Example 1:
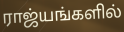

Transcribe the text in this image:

ராஜ்யங்களில்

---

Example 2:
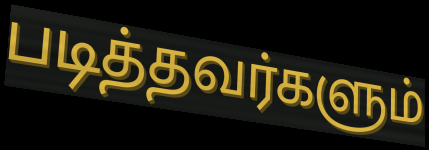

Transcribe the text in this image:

படித்தவர்களும்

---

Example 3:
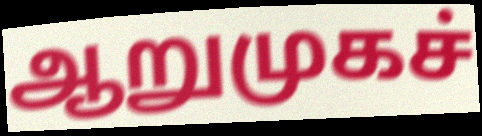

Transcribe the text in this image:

ஆறுமுகச்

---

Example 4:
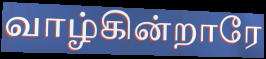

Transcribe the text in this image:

வாழ்கின்றாரே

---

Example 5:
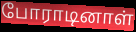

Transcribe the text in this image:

போராடினாள்